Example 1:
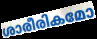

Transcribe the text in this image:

ശാരീരികമോ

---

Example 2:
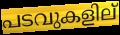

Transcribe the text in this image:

പടവുകളില്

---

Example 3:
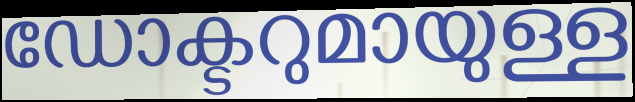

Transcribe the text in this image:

ഡോക്ടറുമായുള്ള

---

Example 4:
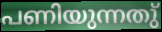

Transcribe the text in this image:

പണിയുന്നതു്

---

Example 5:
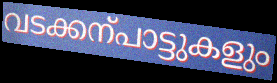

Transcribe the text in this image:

വടക്കന്പാട്ടുകളും